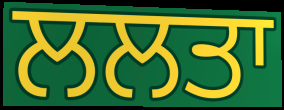
ਲਲਤਾ